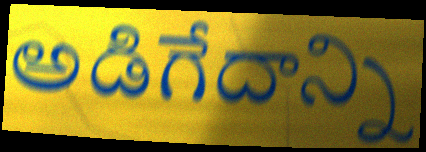
అడిగేదాన్ని